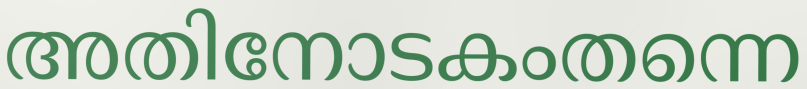
അതിനോടകംതന്നെ